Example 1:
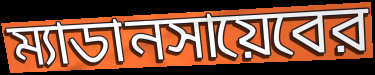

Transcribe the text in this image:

ম্যাডানসায়েবের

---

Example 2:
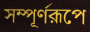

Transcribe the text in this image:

সম্পূর্ণরূপে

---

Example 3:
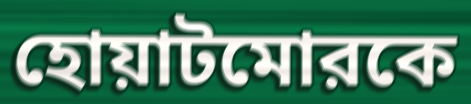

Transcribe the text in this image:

হোয়াটমোরকে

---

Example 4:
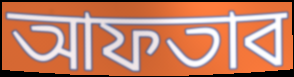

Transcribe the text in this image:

আফতাব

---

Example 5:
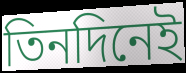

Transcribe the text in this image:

তিনদিনেই